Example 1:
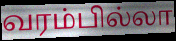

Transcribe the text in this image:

வரம்பில்லா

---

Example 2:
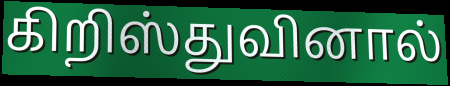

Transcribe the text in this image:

கிறிஸ்துவினால்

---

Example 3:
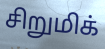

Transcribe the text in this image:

சிறுமிக்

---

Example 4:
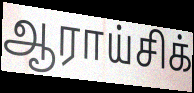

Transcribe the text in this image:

ஆராய்சிக்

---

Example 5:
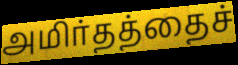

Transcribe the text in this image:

அமிர்தத்தைச்